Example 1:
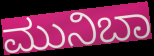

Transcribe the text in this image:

ಮುನಿಬಾ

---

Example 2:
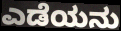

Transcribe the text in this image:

ಎಡೆಯನು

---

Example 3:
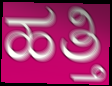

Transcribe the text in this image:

ಹತ್ತಿ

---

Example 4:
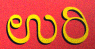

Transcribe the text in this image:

ಉರಿ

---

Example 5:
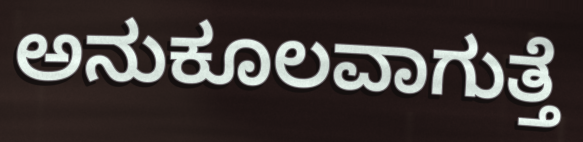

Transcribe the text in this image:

ಅನುಕೂಲವಾಗುತ್ತೆ